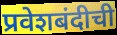
प्रवेशबंदीची